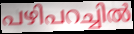
പഴിപറച്ചിൽ